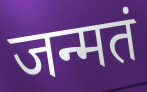
जन्मतं